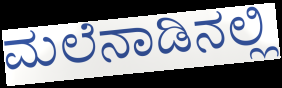
ಮಲೆನಾಡಿನಲ್ಲಿ